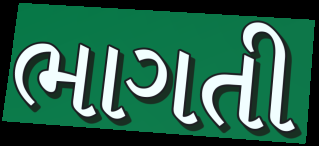
ભાગતી